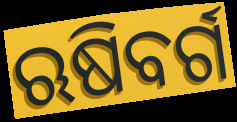
ଋଷିବର୍ଗ